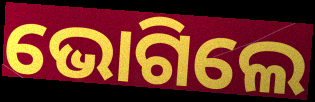
ଭୋଗିଲେ